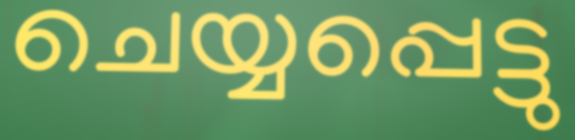
ചെയ്യപ്പെട്ടു